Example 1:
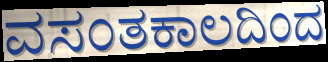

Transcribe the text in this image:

ವಸಂತಕಾಲದಿಂದ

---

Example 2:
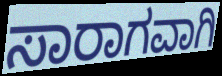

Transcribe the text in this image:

ಸಾರಾಗವಾಗಿ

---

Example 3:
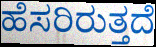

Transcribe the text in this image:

ಹೆಸರಿರುತ್ತದೆ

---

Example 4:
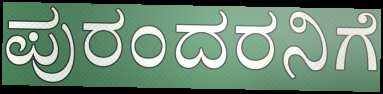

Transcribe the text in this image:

ಪುರಂದರನಿಗೆ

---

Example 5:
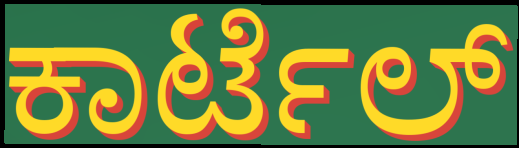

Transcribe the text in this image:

ಕಾರ್ಟೆಲ್